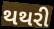
થથરી